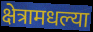
क्षेत्रामधल्या